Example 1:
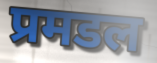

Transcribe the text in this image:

प्रमडल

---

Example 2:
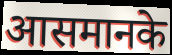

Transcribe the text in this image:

आसमानके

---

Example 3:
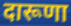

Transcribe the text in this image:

दारूणा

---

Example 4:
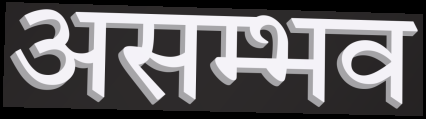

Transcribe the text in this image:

असम्‍भव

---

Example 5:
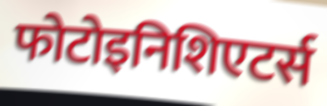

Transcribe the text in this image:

फोटोइनिशिएटर्स